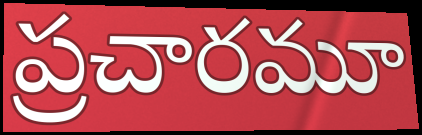
ప్రచారమూ